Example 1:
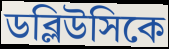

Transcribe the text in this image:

ডব্লিউসিকে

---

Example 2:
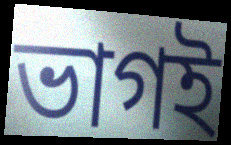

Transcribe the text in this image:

ভাগই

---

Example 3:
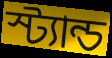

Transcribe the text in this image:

স্ট্যান্ড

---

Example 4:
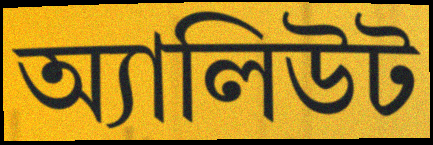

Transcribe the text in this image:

অ্যালিউট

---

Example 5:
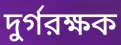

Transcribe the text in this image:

দুর্গরক্ষক